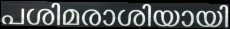
പശിമരാശിയായി